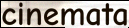
cinemata